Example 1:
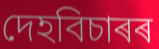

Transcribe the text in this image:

দেহবিচাৰৰ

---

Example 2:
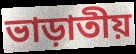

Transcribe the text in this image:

ভাড়াতীয়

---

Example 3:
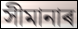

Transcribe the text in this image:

সীমানাৰ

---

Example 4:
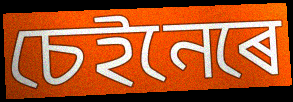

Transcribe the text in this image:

চেইনেৰে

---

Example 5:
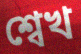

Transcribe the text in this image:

শ্বেখ